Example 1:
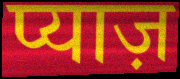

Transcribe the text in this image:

प्याज़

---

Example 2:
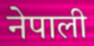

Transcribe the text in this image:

नेपाली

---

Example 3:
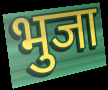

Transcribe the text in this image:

भुजा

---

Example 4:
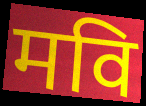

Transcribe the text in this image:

मवि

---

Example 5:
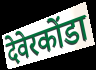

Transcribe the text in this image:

देवेरकोंडा